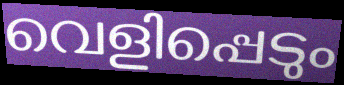
വെളിപ്പെടും